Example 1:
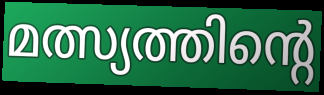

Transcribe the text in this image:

മത്സ്യത്തിന്റെ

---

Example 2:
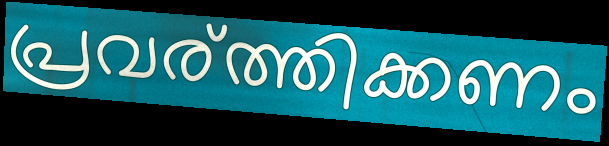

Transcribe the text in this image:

പ്രവര്ത്തിക്കണം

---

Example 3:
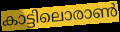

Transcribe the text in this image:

കാട്ടിലൊരാൺ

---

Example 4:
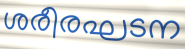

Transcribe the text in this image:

ശരീരഘടന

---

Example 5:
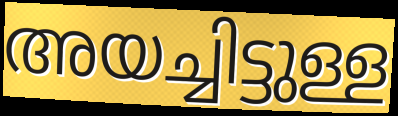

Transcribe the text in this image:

അയച്ചിട്ടുള്ള